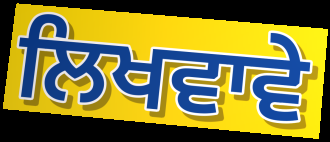
ਲਿਖਵਾਵੇ